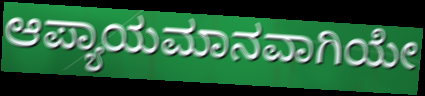
ಆಪ್ಯಾಯಮಾನವಾಗಿಯೇ